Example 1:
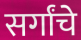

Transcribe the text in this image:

सर्गांचे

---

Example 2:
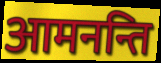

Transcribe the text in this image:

आमनन्ति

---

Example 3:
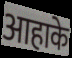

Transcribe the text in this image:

आहाके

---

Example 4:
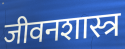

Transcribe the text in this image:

जीवनशास्त्र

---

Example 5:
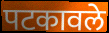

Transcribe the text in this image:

पटकावले